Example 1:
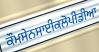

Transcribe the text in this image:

ਕੌਮਸੇਨਸਾਈਕਲੋਪੀਡੀਆ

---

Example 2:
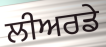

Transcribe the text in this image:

ਲੀਅਰਡੇ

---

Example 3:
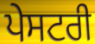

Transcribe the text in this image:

ਪੇਸਟਰੀ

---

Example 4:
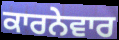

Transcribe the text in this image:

ਕਾਰਨੇਵਾਰ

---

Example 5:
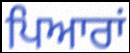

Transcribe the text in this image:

ਪਿਆਰਾਂ